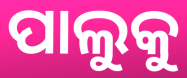
ପାଲୁକୁ